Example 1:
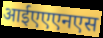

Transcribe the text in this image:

आईएएएनएस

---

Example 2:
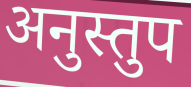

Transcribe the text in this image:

अनुस्तुप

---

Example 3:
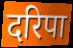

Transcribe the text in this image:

दरिपा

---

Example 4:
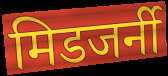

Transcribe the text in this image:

मिडजर्नी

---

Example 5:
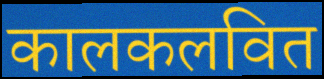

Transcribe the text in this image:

कालकलवित